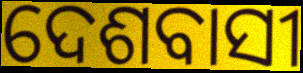
ଦେଶବାସୀ